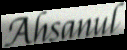
Ahsanul